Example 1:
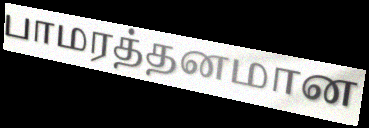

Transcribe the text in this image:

பாமரத்தனமான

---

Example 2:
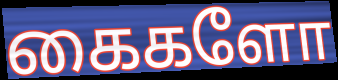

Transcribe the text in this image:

கைகளோ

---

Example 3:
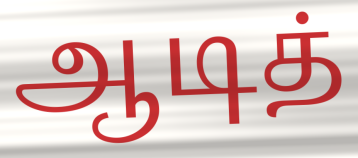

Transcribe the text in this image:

ஆடித்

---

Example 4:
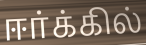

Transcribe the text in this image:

ஈர்க்கில்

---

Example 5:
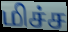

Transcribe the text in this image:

மிச்ச